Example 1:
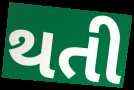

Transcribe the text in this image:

થતી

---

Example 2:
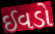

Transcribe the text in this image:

ઈવડો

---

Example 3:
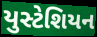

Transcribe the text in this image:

યુસ્ટેશિયન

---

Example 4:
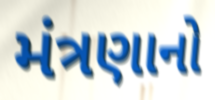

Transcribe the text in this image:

મંત્રણાનો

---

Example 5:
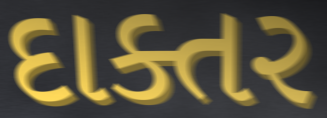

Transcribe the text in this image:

દાક્તર